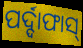
ପର୍ଦ୍ଦାଫାସ୍